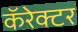
कॅरेक्टर